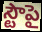
స్టౌపై